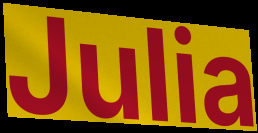
Julia